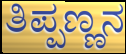
ತಿಪ್ಪಣ್ಣನ